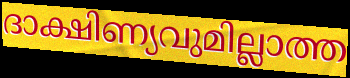
ദാക്ഷിണ്യവുമില്ലാത്ത